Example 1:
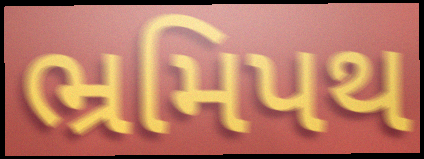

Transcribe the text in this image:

ભ્રમિપથ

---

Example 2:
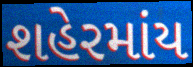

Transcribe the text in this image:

શહેરમાંય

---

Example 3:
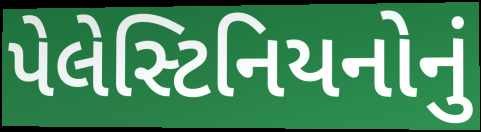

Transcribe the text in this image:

પેલેસ્ટિનિયનોનું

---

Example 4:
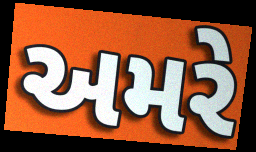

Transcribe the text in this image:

અમરે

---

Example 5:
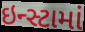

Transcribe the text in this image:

ઇન્સ્ટામાં